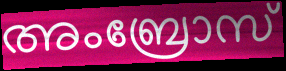
അംബ്രോസ്